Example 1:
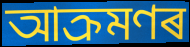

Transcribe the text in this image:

আক্ৰমণৰ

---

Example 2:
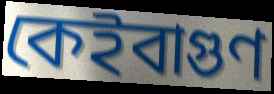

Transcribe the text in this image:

কেইবাগুণ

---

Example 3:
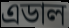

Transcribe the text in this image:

এডাল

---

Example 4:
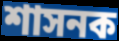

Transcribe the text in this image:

শাসনক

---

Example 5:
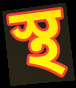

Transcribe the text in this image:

স্থ